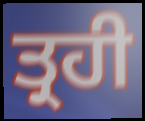
ਤ੍ਰਹੀ